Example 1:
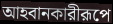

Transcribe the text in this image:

আহবানকারীরূপে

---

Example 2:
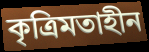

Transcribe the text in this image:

কৃত্রিমতাহীন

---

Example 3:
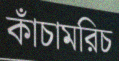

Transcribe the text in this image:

কাঁচামরিচ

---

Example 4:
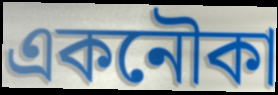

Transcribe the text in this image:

একনৌকা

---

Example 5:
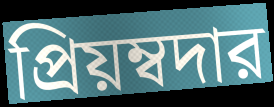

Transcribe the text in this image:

প্রিয়ম্বদার